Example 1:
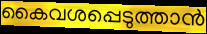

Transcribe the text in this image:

കൈവശപ്പെടുത്താൻ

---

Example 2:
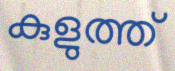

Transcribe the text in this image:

കുളുത്ത്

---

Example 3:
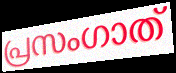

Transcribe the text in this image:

പ്രസംഗാത്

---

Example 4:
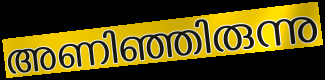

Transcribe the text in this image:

അണിഞ്ഞിരുന്നു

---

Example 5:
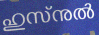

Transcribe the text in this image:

ഹുസ്നുൽ